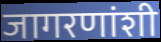
जागरणांशी